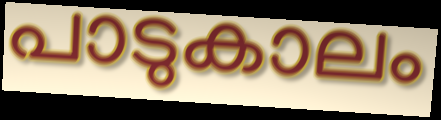
പാടുകാലം